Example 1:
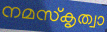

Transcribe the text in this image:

നമസ്കൃത്വാ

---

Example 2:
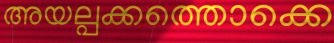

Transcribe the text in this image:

അയല്പക്കത്തൊക്കെ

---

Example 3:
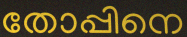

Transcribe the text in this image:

തോപ്പിനെ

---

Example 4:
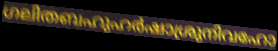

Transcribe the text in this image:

ഗലിതബഹുഹർഷാശ്രുനിവഹോ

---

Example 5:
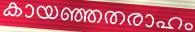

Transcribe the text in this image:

കായഞ്ഞതരാഹം